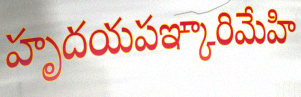
హృదయపఞ్కారిమేహి